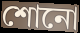
শোনো